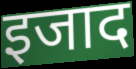
इजाद